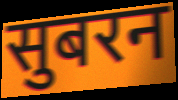
सुबरन